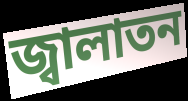
জ্বালাতন